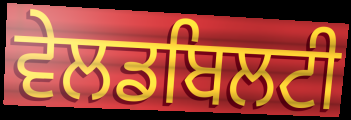
ਵੇਲਡਬਿਲਟੀ